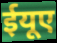
ईयूए